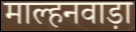
माल्हनवाड़ा